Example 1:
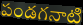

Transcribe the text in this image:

పండగనాటి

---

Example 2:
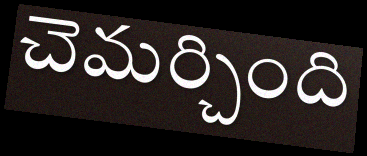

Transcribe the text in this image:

చెమర్చింది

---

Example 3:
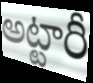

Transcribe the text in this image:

అట్టారీ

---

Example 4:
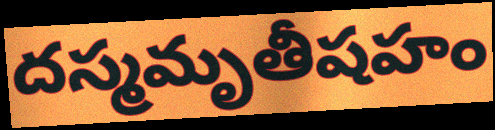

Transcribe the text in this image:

దస్మమృతీషహం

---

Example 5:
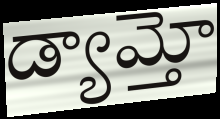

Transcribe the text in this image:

డ్యామ్తో